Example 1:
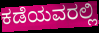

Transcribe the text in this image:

ಕಡೆಯವರಲ್ಲಿ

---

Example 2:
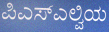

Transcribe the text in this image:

ಪಿಎಸ್ಎಲ್ವಿಯ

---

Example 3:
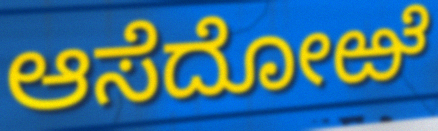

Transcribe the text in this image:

ಆಸೆದೋಱೆ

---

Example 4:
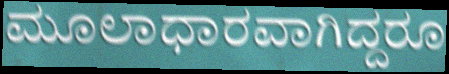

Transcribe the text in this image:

ಮೂಲಾಧಾರವಾಗಿದ್ದರೂ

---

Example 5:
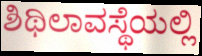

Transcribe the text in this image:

ಶಿಥಿಲಾವಸ್ಥೆಯಲ್ಲಿ